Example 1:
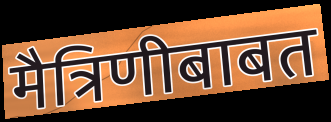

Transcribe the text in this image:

मैत्रिणीबाबत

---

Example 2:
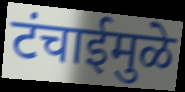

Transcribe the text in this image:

टंचाईमुळे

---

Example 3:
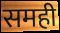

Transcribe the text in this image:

समही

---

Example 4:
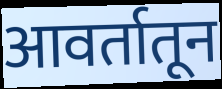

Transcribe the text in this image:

आवर्तातून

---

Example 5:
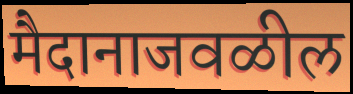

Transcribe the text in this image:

मैदानाजवळील